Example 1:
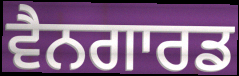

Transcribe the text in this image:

ਵੈਨਗਾਰਡ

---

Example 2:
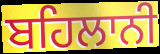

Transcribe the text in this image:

ਬਹਿਲਾਨੀ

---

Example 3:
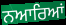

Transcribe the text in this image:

ਨਆਰਿਆਂ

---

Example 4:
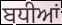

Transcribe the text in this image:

ਬਧੀਆਂ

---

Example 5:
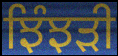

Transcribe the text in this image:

ਝਿੰਝੜੀ